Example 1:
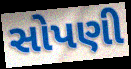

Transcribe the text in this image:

સોપણી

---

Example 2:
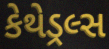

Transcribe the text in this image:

કેથેડ્રલ્સ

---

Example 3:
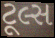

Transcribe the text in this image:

ટૂલ્સ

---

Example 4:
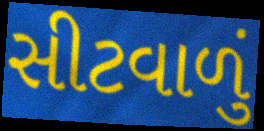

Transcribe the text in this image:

સીટવાળું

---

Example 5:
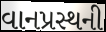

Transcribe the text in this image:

વાનપ્રસ્થની